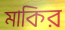
মাকির